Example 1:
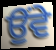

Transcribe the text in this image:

ਉੰਵੇ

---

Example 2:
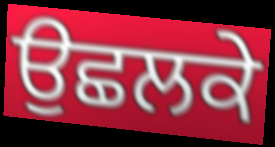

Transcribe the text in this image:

ਉਛਲਕੇ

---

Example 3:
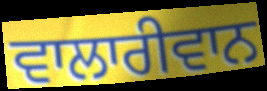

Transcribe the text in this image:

ਵਾਲਾਰੀਵਾਨ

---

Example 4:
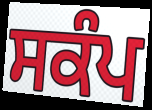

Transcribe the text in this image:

ਸਕੰਪ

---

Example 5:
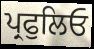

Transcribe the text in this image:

ਪ੍ਰਫੁਲਿਓ